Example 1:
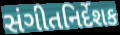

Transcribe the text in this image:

સંગીતનિર્દેશક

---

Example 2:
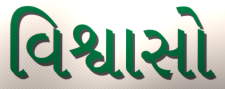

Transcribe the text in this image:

વિશ્વાસો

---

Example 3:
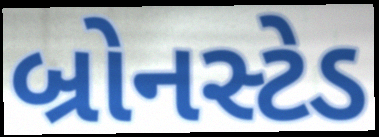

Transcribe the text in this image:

બ્રોનસ્ટેડ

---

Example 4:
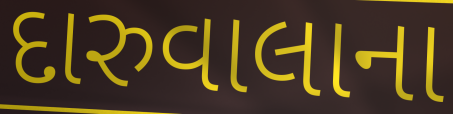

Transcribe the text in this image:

દારુવાલાના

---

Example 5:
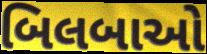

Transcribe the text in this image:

બિલબાઓ